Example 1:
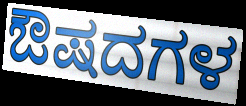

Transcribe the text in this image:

ಔಷದಗಳ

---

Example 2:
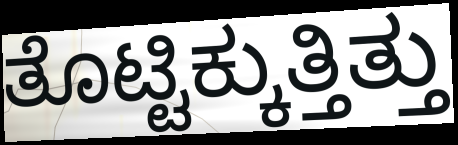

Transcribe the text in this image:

ತೊಟ್ಟಿಕ್ಕುತ್ತಿತ್ತು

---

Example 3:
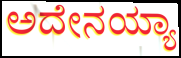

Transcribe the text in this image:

ಅದೇನಯ್ಯಾ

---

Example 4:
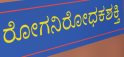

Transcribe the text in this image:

ರೋಗನಿರೋಧಕಶಕ್ತಿ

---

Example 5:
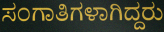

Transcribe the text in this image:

ಸಂಗಾತಿಗಳಾಗಿದ್ದರು